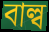
বাল্ব